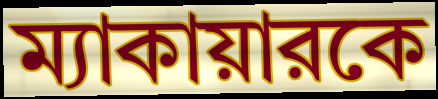
ম্যাকায়ারকে